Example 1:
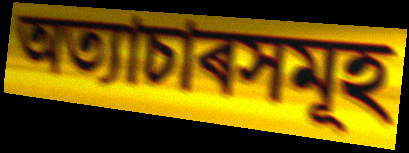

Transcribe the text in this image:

অত্যাচাৰসমূহ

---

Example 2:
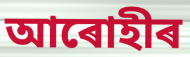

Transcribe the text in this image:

আৰোহীৰ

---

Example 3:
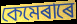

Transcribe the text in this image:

কেমেৰাৰে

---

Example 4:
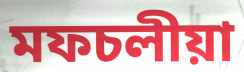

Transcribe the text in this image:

মফচলীয়া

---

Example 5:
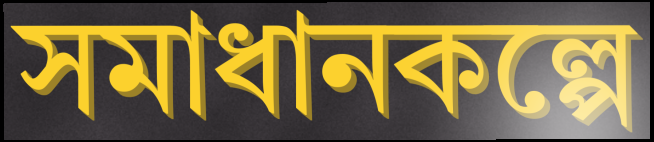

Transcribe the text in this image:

সমাধানকল্পে